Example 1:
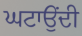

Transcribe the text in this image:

ਘਟਾਉਂਦੀ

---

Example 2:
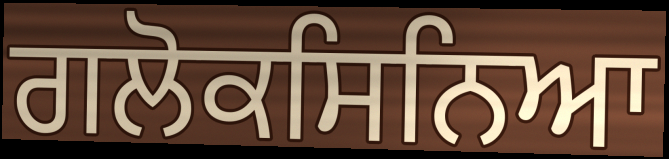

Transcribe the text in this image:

ਗਲੋਕਸਿਨਿਆ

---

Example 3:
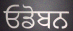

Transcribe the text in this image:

ਓਡੋਬਨ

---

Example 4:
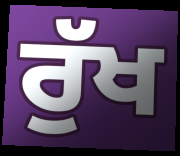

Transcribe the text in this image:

ਰੁੱਖ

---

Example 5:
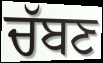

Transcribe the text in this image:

ਚੱਬਣ